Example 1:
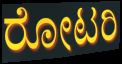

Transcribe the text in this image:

ರೋಟರಿ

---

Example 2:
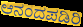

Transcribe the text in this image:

ಆನಂದಪಡಿರಿ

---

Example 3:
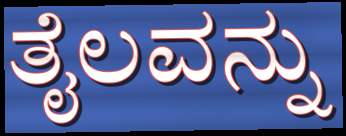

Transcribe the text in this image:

ತೈಲವನ್ನು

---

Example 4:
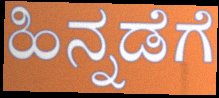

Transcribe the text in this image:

ಹಿನ್ನಡೆಗೆ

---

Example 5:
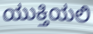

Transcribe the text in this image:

ಯುಕ್ತಿಯಲಿ